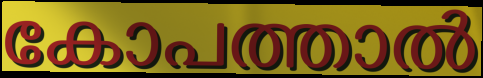
കോപത്താൽ